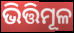
ଭିତ୍ତିମୂଳ